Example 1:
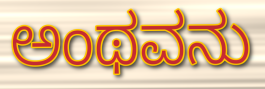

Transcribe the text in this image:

ಅಂಥವನು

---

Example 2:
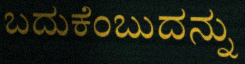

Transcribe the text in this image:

ಬದುಕೆಂಬುದನ್ನು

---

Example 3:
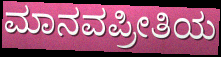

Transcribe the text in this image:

ಮಾನವಪ್ರೀತಿಯ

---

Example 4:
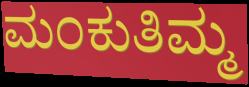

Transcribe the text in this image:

ಮಂಕುತಿಮ್ಮ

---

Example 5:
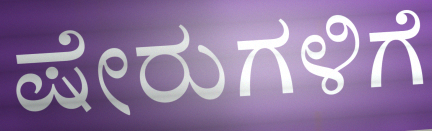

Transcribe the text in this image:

ಷೇರುಗಳಿಗೆ